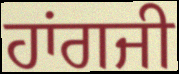
ਹਾਂਗਜੀ